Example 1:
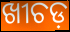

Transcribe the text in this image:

ଖୀଚଡ଼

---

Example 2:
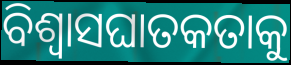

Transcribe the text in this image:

ବିଶ୍ୱାସଘାତକତାକୁ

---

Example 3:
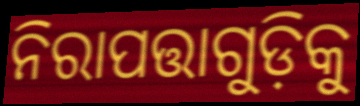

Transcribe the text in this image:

ନିରାପତ୍ତାଗୁଡ଼ିକୁ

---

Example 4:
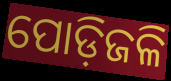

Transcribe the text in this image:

ପୋଡ଼ିଜଳି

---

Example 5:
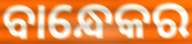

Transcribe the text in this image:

ବାନ୍ଧେକର